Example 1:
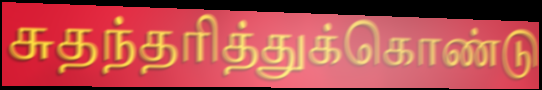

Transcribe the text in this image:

சுதந்தரித்துக்கொண்டு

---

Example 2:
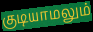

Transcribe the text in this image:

குடியாமலும்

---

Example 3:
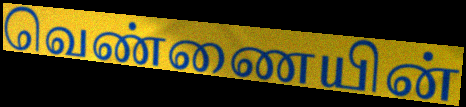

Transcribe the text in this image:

வெண்ணையின்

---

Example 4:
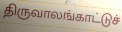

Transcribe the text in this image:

திருவாலங்காட்டுச்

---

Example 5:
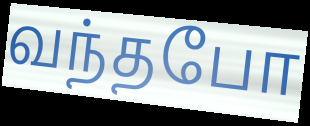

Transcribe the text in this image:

வந்தபோ